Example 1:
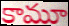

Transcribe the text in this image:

కామూ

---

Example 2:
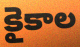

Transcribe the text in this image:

కైకాల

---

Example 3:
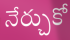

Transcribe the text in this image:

నేర్చుకో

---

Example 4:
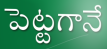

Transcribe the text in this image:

పెట్టగానే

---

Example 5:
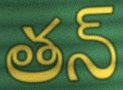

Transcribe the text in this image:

తన్